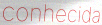
conhecida